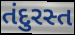
તંદુરસ્ત